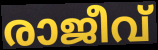
രാജീവ്